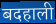
बदहाली